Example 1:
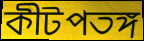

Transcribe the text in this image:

কীটপতঙ্গ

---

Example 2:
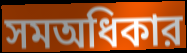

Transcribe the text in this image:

সমঅধিকার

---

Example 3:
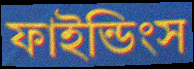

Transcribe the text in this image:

ফাইন্ডিংস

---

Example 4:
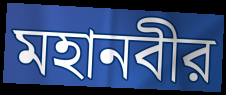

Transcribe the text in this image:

মহানবীর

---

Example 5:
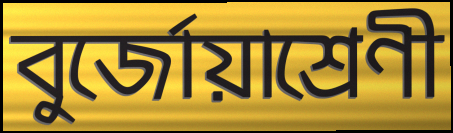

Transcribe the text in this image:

বুর্জোয়াশ্রেণী